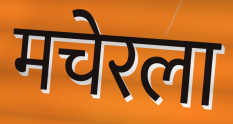
मचेरला